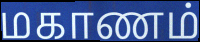
மகாணம்